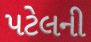
પટેલની